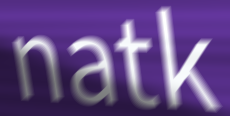
natk